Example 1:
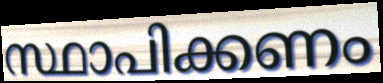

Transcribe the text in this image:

സ്ഥാപിക്കണം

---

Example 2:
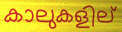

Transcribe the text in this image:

കാലുകളില്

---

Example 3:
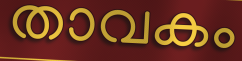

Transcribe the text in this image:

താവകം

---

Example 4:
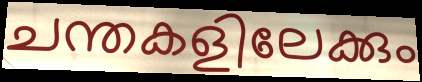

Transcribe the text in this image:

ചന്തകളിലേക്കും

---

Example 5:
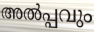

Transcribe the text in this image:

അൽപ്പവും